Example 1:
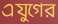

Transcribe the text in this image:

এযুগের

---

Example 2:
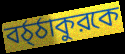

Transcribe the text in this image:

বঠ্ঠাকুরকে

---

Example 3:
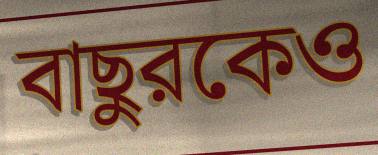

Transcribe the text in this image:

বাছুরকেও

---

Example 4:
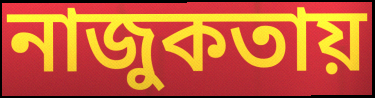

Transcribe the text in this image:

নাজুকতায়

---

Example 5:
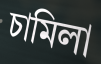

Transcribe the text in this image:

চামিলা